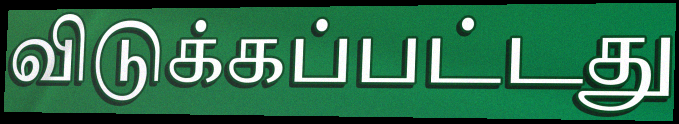
விடுக்கப்பட்டது